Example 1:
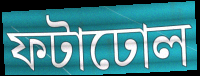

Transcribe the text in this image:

ফটাঢোল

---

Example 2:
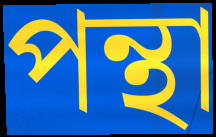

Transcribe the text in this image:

পন্থা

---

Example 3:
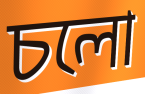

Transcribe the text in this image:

চলো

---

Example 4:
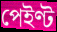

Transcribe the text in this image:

পেইণ্ট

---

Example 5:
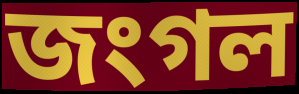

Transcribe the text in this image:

জংগল